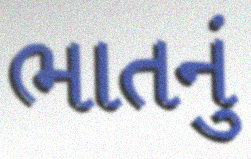
ભાતનું